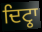
ਦਿਟ੍ਠਾ